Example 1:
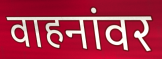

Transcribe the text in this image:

वाहनांवर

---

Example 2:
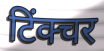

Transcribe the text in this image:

टिंक्चर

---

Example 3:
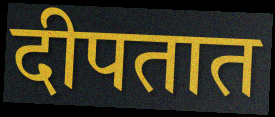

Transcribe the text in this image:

दीपतात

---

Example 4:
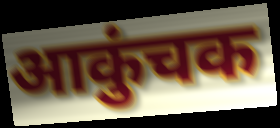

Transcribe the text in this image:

आकुंचक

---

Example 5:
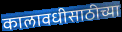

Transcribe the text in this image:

कालावधीसाठीच्या